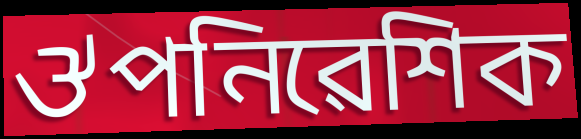
ঔপনিৱেশিক